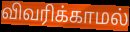
விவரிக்காமல்